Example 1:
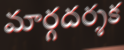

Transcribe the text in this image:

మార్గదర్శక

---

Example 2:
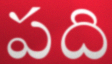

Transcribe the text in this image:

పది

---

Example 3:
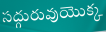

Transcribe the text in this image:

సద్గురువుయొక్క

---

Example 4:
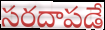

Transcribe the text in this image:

సరదాపడే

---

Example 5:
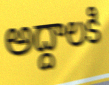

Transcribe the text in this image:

అద్దాలకి